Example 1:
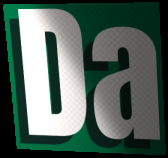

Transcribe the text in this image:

Da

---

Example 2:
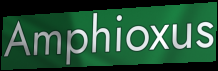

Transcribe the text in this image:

Amphioxus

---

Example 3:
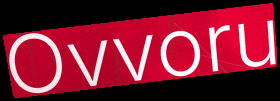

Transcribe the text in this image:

Ovvoru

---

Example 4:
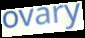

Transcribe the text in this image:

ovary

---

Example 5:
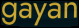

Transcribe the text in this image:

gayan